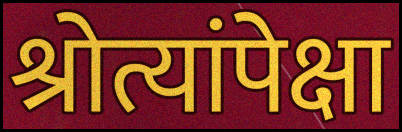
श्रोत्यांपेक्षा